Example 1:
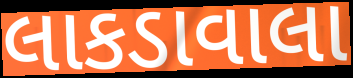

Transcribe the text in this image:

લાકડાવાલા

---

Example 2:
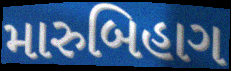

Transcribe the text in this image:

મારુબિહાગ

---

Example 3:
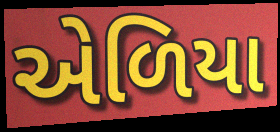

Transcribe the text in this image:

એળિયા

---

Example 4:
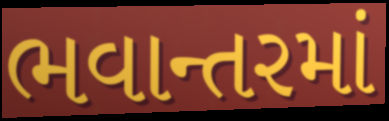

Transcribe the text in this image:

ભવાન્તરમાં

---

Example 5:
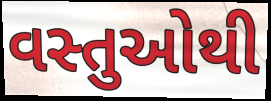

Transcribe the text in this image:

વસ્તુઓથી